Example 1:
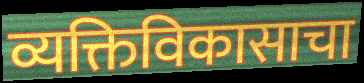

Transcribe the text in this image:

व्यक्तिविकासाचा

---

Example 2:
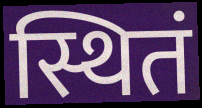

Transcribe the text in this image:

स्थितं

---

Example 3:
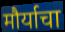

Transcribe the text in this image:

मौर्याचा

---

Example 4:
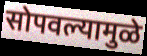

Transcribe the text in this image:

सोपवल्यामुळे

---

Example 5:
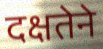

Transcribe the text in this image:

दक्षतेने